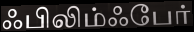
ஃபிலிம்ஃபேர்